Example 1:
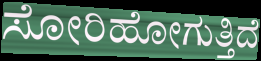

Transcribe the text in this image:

ಸೋರಿಹೋಗುತ್ತಿದೆ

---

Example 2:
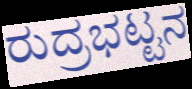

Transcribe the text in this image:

ರುದ್ರಭಟ್ಟನ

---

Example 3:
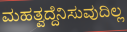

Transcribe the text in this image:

ಮಹತ್ವದ್ದೆನಿಸುವುದಿಲ್ಲ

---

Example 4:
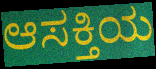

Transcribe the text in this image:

ಆಸಕ್ತಿಯ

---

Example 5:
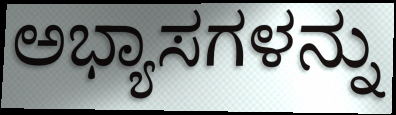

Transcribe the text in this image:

ಅಭ್ಯಾಸಗಳನ್ನು